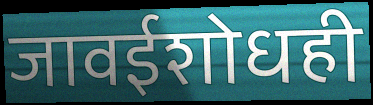
जावईशोधही